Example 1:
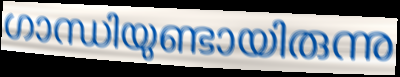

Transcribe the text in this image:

ഗാന്ധിയുണ്ടായിരുന്നു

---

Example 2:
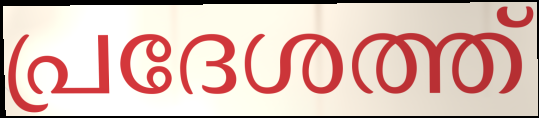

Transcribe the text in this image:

പ്രദേശത്ത്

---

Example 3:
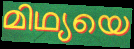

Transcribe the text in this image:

മിഥ്യയെ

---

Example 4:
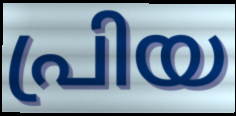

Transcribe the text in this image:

പ്രിയ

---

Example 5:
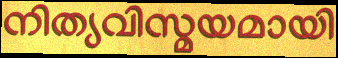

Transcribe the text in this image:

നിത്യവിസ്മയമായി